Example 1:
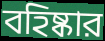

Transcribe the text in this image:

বহিষ্কার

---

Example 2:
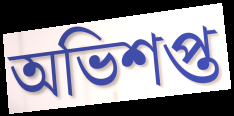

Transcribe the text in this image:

অভিশপ্ত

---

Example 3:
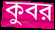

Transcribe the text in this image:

কুবর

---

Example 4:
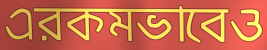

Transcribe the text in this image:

এরকমভাবেও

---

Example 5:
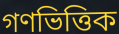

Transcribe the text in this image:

গণভিত্তিক